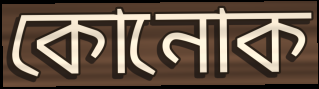
কোনোক